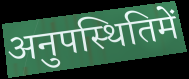
अनुपस्थितिमें